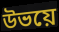
উভয়ে